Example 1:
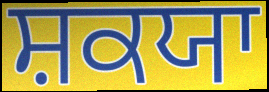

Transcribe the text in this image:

ਸ਼ਕਯਾ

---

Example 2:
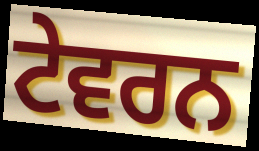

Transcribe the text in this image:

ਟੇਵਰਨ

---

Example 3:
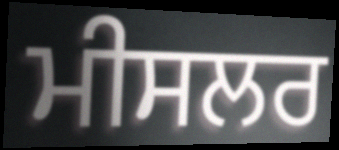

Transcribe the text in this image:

ਮੀਸਲਰ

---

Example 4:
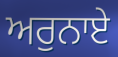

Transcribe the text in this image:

ਅਰੁਨਾਏ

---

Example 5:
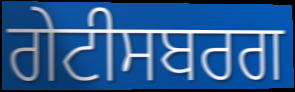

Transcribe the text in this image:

ਗੇਟੀਸਬਰਗ